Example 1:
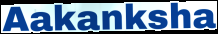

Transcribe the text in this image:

Aakanksha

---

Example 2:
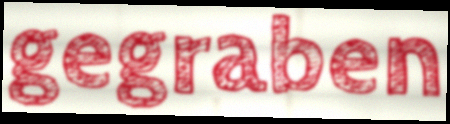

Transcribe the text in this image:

gegraben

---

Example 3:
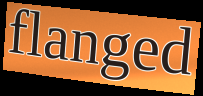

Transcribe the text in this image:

flanged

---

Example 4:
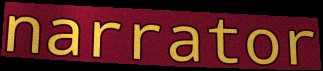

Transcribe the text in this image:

narrator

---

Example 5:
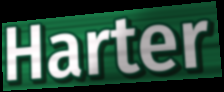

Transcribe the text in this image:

Harter